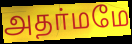
அதர்மமே